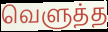
வெளுத்த